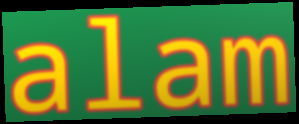
alam